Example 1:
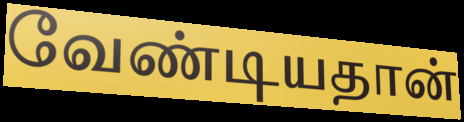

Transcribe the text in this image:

வேண்டியதான்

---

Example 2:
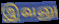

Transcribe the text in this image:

இவனு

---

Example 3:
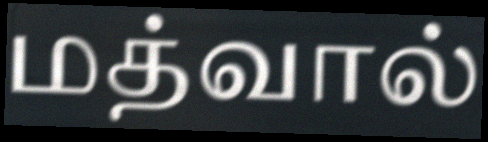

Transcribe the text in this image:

மத்வால்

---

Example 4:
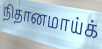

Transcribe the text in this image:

நிதானமாய்க்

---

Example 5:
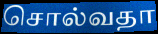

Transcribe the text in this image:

சொல்வதா